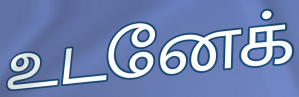
உடனேக்